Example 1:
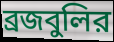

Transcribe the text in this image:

ব্রজবুলির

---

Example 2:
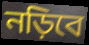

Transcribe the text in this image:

নড়িবে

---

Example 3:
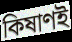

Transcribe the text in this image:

কিষাণই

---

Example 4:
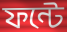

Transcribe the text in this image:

ফন্টে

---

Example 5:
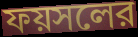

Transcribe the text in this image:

ফয়সলের